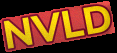
NVLD